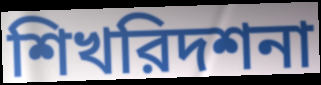
শিখরিদশনা